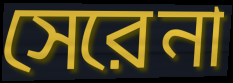
সেরেনা